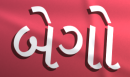
બેગો